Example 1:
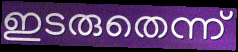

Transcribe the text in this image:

ഇടരുതെന്ന്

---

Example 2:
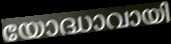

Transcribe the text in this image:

യോദ്ധാവായി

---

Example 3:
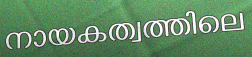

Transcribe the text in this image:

നായകത്വത്തിലെ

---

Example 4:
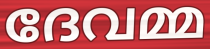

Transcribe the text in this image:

ദേവമ്മ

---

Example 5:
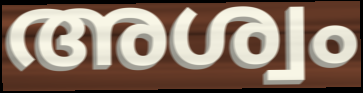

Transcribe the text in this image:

അശ്വം